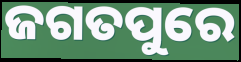
ଜଗତପୁରେ